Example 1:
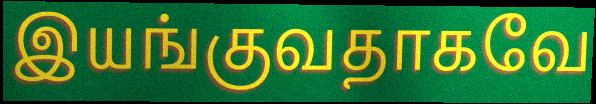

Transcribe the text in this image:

இயங்குவதாகவே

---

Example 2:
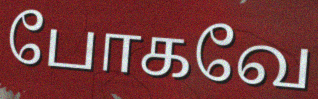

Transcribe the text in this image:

போகவே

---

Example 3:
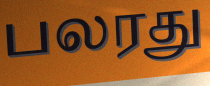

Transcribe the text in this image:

பலரது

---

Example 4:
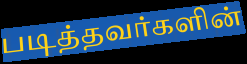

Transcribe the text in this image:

படித்தவர்களின்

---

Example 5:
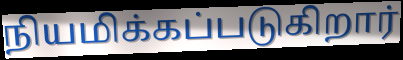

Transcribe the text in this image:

நியமிக்கப்படுகிறார்